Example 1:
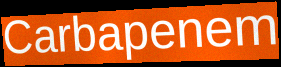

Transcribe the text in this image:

Carbapenem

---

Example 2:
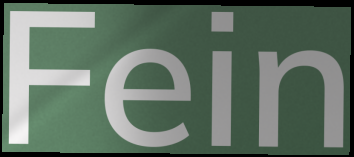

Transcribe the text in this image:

Fein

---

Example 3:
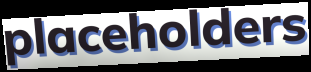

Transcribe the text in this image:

placeholders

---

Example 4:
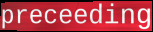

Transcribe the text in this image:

preceeding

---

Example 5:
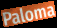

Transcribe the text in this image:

Paloma